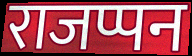
राजप्पन